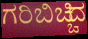
ಗರಿಬಿಚ್ಚಿದ